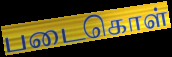
படைகொள்